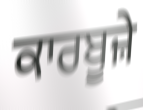
ਕਾਰਬੂਜ਼ੇ